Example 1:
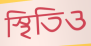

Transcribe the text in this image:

স্থিতিও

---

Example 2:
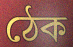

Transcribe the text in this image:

ঠেক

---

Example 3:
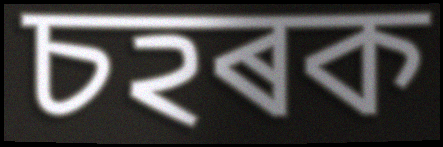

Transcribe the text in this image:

চহৰক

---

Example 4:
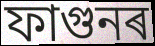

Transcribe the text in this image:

ফাগুনৰ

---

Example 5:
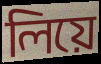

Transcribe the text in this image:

লিয়ে